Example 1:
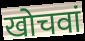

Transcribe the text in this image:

खोचवां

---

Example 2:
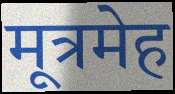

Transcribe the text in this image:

मूत्रमेह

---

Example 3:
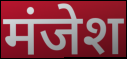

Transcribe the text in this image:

मंजेश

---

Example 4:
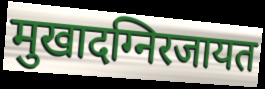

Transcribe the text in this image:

मुखादग्निरजायत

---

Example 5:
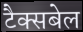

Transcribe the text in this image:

टैक्सबेल